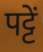
पट्टें